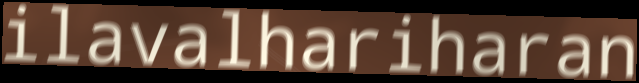
ilavalhariharan